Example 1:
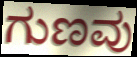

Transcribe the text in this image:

ಗುಣವು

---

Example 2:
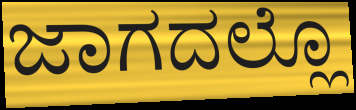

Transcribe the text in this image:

ಜಾಗದಲ್ಲೊ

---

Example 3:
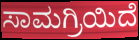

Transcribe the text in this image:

ಸಾಮಗ್ರಿಯಿದೆ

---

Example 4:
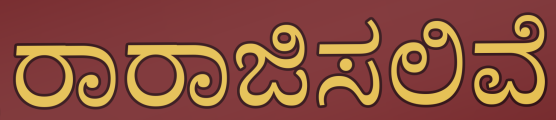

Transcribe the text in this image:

ರಾರಾಜಿಸಲಿವೆ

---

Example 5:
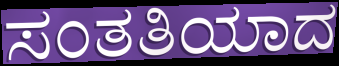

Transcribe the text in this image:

ಸಂತತಿಯಾದ